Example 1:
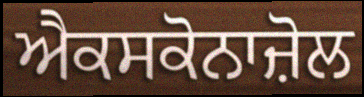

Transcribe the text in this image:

ਐਕਸਕੋਨਾਜ਼ੋਲ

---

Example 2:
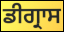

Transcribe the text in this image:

ਡੀਗ੍ਰਾਸ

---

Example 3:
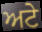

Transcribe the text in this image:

ਅਟੇ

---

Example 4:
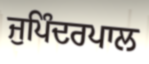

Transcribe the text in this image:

ਜੁਪਿੰਦਰਪਾਲ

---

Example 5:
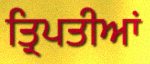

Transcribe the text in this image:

ਤ੍ਰਿਪਤੀਆਂ